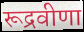
रूद्रवीणा